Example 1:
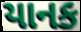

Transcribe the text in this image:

યાનક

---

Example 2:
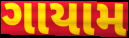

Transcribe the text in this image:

ગાયામ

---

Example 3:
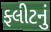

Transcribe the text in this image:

ફ્લીટનું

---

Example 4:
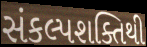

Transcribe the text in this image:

સંકલ્પશક્તિથી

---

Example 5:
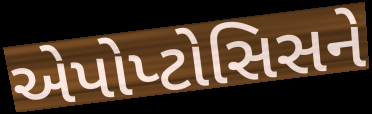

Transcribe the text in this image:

એપોપ્ટોસિસને